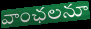
వాంఛలనూ